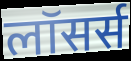
लॉसर्स